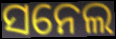
ସନେଲ